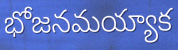
భోజనమయ్యాక